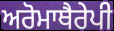
ਅਰੋਮਾਥੈਰੇਪੀ